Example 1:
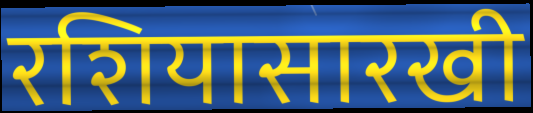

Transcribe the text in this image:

रशियासारखी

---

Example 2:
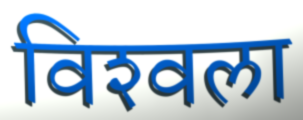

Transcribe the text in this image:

विश्वला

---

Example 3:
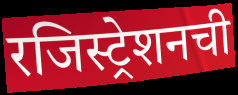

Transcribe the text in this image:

रजिस्ट्रेशनची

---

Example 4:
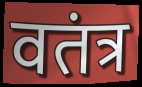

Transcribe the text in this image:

वतंत्र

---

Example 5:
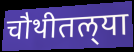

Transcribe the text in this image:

चौथीतल्या